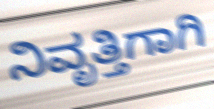
ನಿವೃತ್ತಿಗಾಗಿ